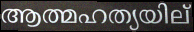
ആത്മഹത്യയില്